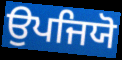
ਉਪਜਿਯੋ